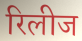
रिलीज